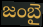
జంబై